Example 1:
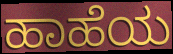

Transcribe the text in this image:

ಹಾಹೆಯ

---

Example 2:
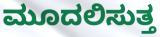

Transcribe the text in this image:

ಮೂದಲಿಸುತ್ತ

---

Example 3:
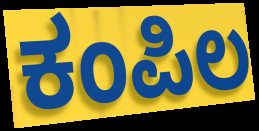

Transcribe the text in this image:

ಕಂಪಿಲ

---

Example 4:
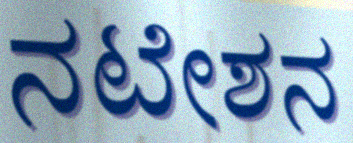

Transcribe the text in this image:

ನಟೇಶನ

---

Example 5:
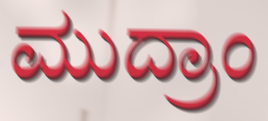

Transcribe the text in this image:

ಮುದ್ರಾಂ